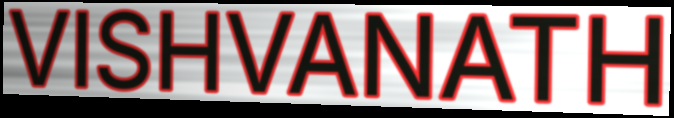
VISHVANATH